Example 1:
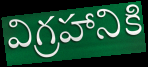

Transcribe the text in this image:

విగ్రహానికి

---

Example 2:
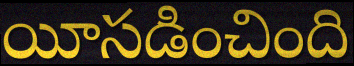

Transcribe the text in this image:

యీసడించింది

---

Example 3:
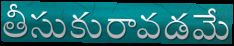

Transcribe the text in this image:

తీసుకురావడమే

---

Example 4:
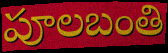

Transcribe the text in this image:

పూలబంతి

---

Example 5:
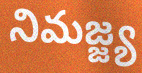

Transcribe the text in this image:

నిమజ్జ్య